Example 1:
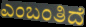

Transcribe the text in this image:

ಎಂಬಂತಿದೆ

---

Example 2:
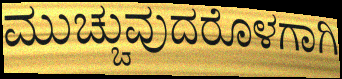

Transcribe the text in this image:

ಮುಚ್ಚುವುದರೊಳಗಾಗಿ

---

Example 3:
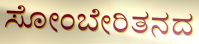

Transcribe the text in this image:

ಸೋಂಬೇರಿತನದ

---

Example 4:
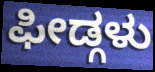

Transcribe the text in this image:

ಫೀಡ್ಗಳು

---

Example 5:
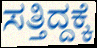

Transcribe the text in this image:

ಸತ್ತಿದ್ದಕ್ಕೆ